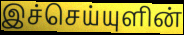
இச்செய்யுளின்